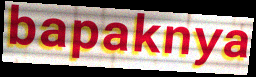
bapaknya